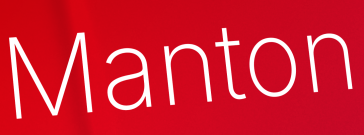
Manton